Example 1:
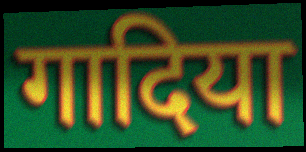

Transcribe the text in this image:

गादिया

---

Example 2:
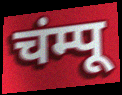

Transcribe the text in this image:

चंम्पू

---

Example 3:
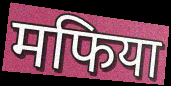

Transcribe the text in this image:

मफिया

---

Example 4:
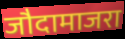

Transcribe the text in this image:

जौदामाजरा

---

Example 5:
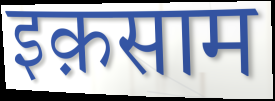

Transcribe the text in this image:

इक़साम